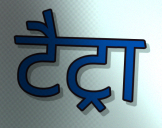
टैट्रा